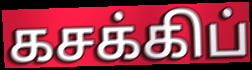
கசக்கிப்